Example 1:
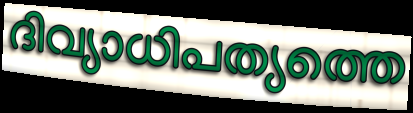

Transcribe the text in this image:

ദിവ്യാധിപത്യത്തെ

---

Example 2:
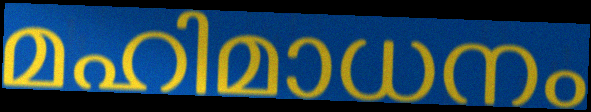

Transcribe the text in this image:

മഹിമാധനം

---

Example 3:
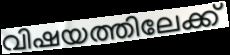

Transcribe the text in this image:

വിഷയത്തിലേക്ക്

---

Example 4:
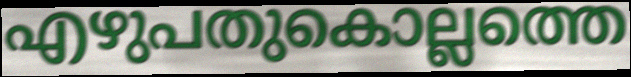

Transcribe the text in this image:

എഴുപതുകൊല്ലത്തെ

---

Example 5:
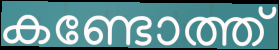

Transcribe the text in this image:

കണ്ടോത്ത്